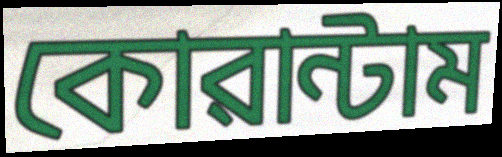
কোৱান্টাম